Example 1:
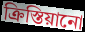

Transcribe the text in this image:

ক্রিস্তিয়ানো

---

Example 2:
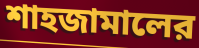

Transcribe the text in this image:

শাহজামালের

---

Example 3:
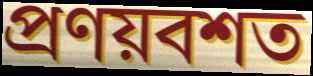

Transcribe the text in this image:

প্রণয়বশত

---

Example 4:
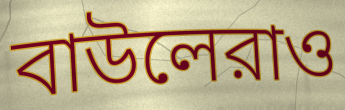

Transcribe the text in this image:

বাউলেরাও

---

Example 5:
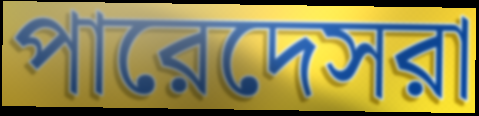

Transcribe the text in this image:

পারেদেসরা